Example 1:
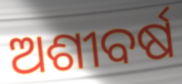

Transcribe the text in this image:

ଅଶୀବର୍ଷ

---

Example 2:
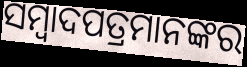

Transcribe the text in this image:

ସମ୍ୱାଦପତ୍ରମାନଙ୍କର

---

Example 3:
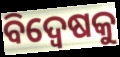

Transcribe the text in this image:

ବିଦ୍ବେଷକୁ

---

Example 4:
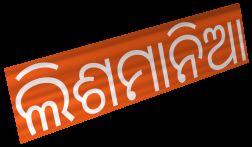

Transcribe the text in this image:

ଲିଶମାନିଆ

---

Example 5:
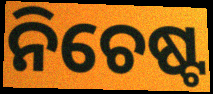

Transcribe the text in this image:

ନିଚେଷ୍ଟ